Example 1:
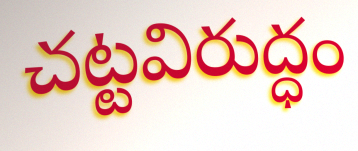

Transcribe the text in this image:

చట్టవిరుద్ధం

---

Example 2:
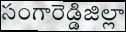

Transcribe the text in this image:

సంగారెడ్డిజిల్లా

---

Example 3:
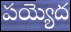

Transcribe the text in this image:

పయ్యెద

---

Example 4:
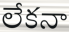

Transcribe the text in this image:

లేకనా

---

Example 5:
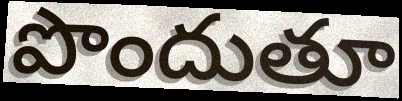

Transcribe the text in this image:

పొందుతూ